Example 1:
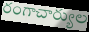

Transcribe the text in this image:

రంగాచార్యుల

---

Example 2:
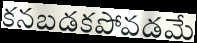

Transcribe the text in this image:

కనబడకపోవడమే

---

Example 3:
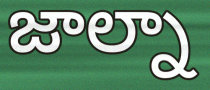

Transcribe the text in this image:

జాల్నా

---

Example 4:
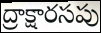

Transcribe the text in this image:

ద్రాక్షారసపు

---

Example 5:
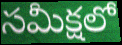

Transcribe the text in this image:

సమీక్షలో